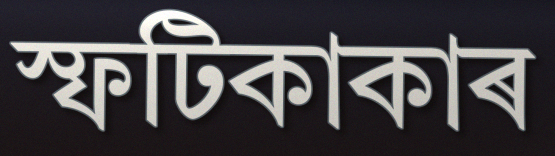
স্ফটিকাকাৰ